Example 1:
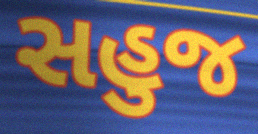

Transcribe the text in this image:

સહુજ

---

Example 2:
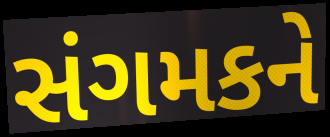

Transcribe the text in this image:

સંગમકને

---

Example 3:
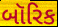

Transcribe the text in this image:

બૉરિક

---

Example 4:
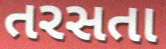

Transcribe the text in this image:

તરસતા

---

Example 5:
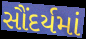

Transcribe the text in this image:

સૌંદર્યમાં